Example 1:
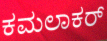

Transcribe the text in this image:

ಕಮಲಾಕರ್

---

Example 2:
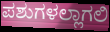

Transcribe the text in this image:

ಪಶುಗಳಲ್ಲಾಗಲಿ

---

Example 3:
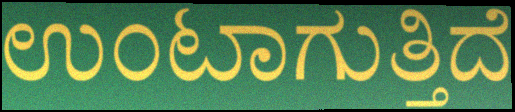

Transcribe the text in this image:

ಉಂಟಾಗುತ್ತಿದೆ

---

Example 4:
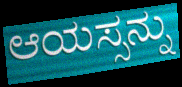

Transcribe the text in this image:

ಆಯಸ್ಸನ್ನು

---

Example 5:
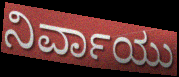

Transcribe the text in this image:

ನಿರ್ವಾಯು